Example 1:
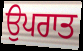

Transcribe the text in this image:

ਉਪਰਾਤ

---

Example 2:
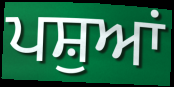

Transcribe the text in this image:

ਪਸ਼ੁਆਂ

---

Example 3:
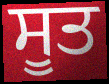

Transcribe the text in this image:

ਸੂਤ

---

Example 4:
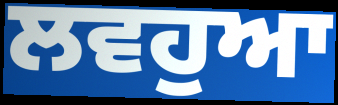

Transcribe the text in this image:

ਲਵਹੁਆ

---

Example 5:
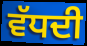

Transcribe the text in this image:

ਵੱਧਦੀ